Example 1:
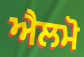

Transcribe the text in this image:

ਐਲਮੋ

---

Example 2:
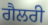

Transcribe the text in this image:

ਗੈਲਰੀ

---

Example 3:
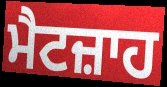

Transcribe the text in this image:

ਮੈਟਜ਼ਾਹ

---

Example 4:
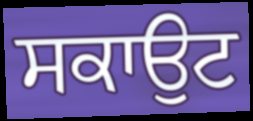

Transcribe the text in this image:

ਸਕਾਉਟ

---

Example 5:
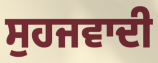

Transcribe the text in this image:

ਸੁਹਜਵਾਦੀ